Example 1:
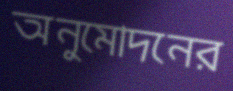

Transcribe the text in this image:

অনুমোদনের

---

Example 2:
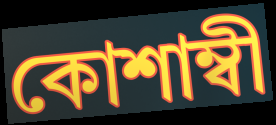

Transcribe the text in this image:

কোশাম্বী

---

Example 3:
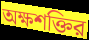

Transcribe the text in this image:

অক্ষশক্তির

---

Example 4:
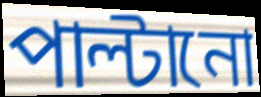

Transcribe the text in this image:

পাল্টানো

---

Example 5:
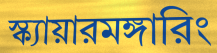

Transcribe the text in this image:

স্ক্যায়ারমঙ্গারিং